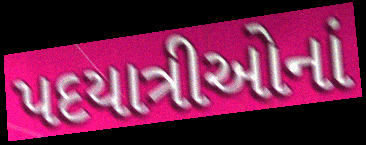
પદયાત્રીઓનાં